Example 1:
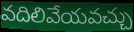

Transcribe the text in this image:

వదిలివేయవచ్చు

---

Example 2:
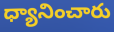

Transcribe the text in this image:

ధ్యానించారు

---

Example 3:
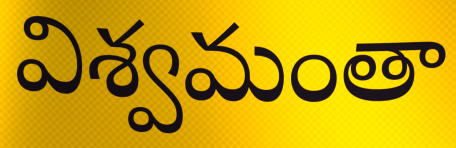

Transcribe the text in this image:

విశ్వమంతా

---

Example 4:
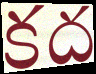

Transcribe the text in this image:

కద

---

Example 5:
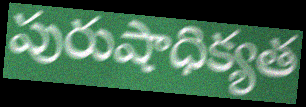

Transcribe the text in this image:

పురుషాధిక్యత